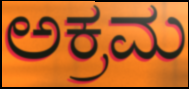
ಅಕ್ರಮ